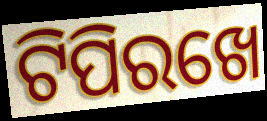
ଟିପିରଖେ